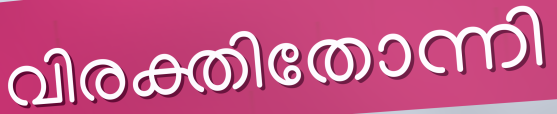
വിരക്തിതോന്നി